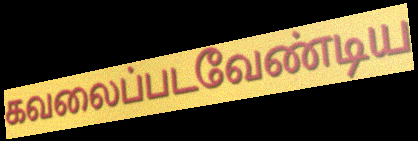
கவலைப்படவேண்டிய